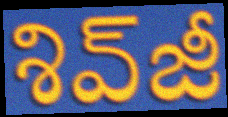
శివ్‌జీ